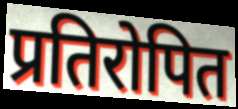
प्रतिरोपित